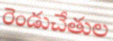
రెండుచేతుల